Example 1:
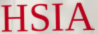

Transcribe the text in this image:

HSIA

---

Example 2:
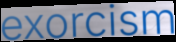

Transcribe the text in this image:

exorcism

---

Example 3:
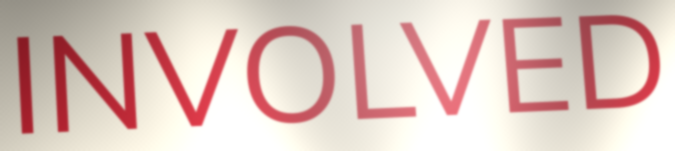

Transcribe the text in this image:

INVOLVED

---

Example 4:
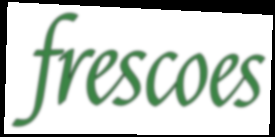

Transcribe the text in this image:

frescoes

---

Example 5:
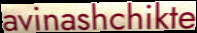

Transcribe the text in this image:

avinashchikte